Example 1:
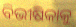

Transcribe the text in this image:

ବିଭୀଷିକାକୁ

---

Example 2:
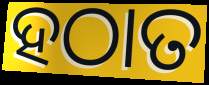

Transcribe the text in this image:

ହଠାତ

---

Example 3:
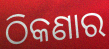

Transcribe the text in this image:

ଠିକଣାର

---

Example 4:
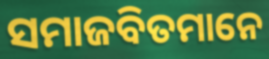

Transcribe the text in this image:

ସମାଜବିତମାନେ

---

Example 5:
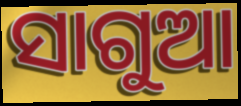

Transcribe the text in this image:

ସାଗୁଆ